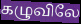
கழுவிலே